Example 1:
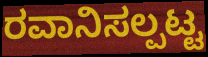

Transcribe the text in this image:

ರವಾನಿಸಲ್ಪಟ್ಟ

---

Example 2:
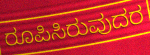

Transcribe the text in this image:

ರೂಪಿಸಿರುವುದರ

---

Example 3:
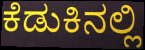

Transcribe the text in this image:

ಕೆಡುಕಿನಲ್ಲಿ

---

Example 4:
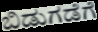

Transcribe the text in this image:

ಬಿಡುಗಡೆಗೆ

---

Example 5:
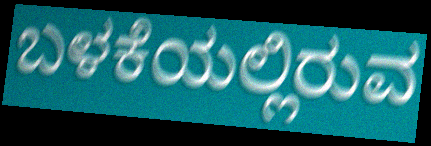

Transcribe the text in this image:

ಬಳಕೆಯಲ್ಲಿರುವ